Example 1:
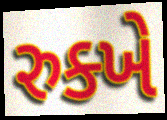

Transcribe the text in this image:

રુક્ખે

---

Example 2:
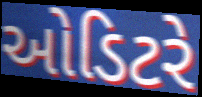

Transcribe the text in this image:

ઓડિટરે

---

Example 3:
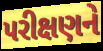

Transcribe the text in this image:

પરીક્ષણને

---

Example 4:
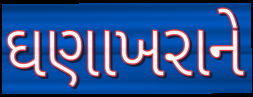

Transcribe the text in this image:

ઘણાખરાને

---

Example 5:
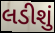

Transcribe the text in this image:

લડીશું